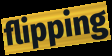
flipping